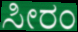
ಸೀರಂ